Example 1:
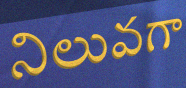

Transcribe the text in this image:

నిలువగా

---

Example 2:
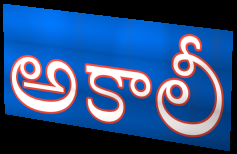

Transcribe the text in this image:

అకాలీ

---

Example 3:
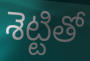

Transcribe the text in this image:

శెట్టితో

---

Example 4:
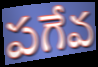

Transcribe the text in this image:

పగేవ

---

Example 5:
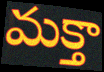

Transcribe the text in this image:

మక్తా